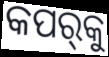
କପର୍‌କୁ